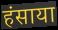
हंसाया